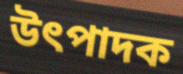
উৎপাদক